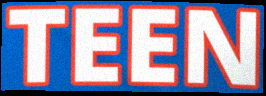
TEEN